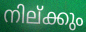
നില്ക്കും